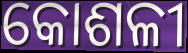
କୋଶଳୀ